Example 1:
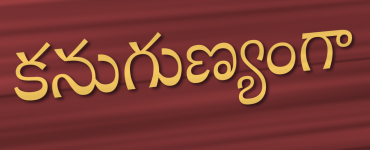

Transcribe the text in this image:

కనుగుణ్యంగా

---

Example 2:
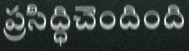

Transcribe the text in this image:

ప్రసిద్ధిచెందింది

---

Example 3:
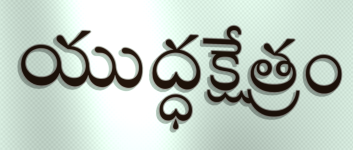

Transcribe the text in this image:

యుద్ధక్షేత్రం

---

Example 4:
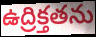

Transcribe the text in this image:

ఉద్రిక్తతను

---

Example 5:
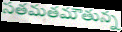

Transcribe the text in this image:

సతమతమౌతున్న